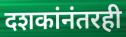
दशकांनंतरही